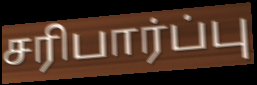
சரிபார்ப்பு